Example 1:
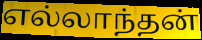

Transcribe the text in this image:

எல்லாந்தன்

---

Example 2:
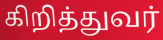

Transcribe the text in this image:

கிறித்துவர்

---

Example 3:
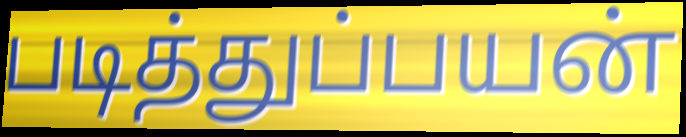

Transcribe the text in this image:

படித்துப்பயன்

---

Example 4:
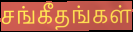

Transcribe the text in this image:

சங்கீதங்கள்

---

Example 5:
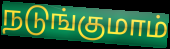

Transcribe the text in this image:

நடுங்குமாம்